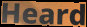
Heard